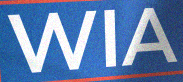
WIA